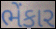
ભેંકાર